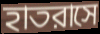
হাতরাসে